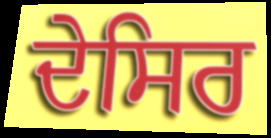
ਦੇਸਿਰ